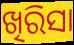
ଖିରିସା